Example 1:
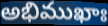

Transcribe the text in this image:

అభిముఖాః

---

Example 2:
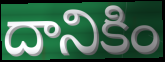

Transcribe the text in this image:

దానికిం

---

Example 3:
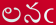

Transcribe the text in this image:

లనఁ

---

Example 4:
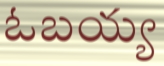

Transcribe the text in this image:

ఓబయ్య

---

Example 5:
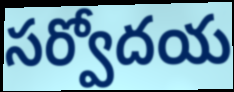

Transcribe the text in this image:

సర్వోదయ